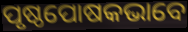
ପୃଷ୍ଠପୋଷକଭାବେ